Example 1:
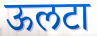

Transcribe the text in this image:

ऊलटा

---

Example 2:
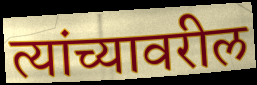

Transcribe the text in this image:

त्यांच्यावरील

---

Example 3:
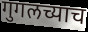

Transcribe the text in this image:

गुगलच्याच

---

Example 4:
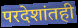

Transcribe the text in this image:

परदेशांतही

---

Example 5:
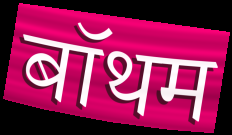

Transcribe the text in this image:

बॉथम